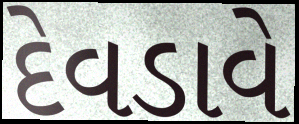
દેવડાવે